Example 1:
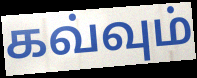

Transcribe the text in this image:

கவ்வும்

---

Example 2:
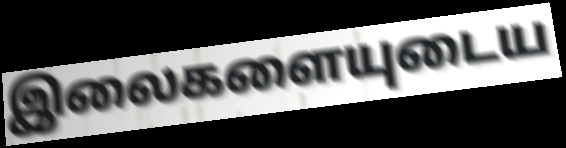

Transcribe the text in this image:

இலைகளையுடைய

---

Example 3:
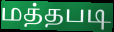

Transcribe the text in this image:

மத்தபடி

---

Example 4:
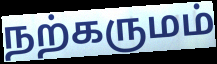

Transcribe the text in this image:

நற்கருமம்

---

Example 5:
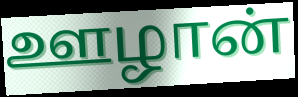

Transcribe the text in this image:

ஊழான்